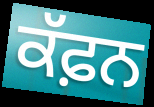
ਕੱਫ਼ਨ